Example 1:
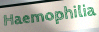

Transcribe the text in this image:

Haemophilia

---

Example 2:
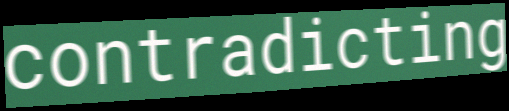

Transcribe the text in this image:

contradicting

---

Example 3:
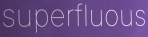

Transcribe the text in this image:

superfluous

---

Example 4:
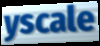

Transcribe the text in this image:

yscale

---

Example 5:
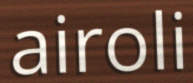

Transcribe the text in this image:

airoli